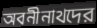
অবনীনাথদের